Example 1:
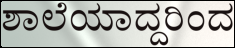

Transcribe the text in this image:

ಶಾಲೆಯಾದ್ದರಿಂದ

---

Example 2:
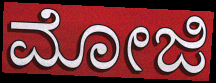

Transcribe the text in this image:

ಮೋಜಿ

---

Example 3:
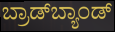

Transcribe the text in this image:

ಬ್ರಾಡ್‌ಬ್ಯಾಂಡ್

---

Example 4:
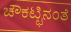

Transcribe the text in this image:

ಚೌಕಟ್ಟಿನಂತೆ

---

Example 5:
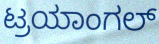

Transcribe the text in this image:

ಟ್ರಯಾಂಗಲ್